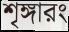
শৃঙ্গারং